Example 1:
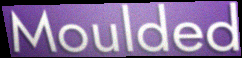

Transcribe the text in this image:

Moulded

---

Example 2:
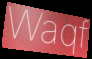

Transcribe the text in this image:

Waqf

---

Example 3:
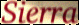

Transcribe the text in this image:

Sierra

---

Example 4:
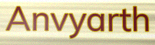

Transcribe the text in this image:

Anvyarth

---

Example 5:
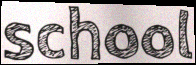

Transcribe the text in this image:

school